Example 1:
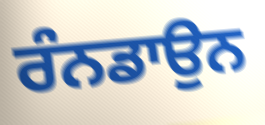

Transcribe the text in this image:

ਰੰਨਡਾਉਨ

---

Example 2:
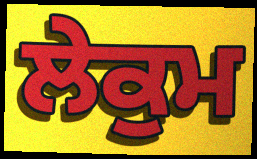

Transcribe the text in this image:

ਲੇਕੁਮ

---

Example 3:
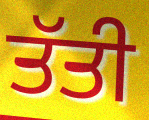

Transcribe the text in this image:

ਤੱਤੀ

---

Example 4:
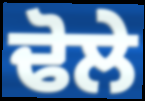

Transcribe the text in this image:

ਢੋਲੇ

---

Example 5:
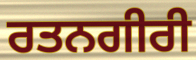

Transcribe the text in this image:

ਰਤਨਗੀਰੀ